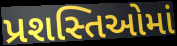
પ્રશસ્તિઓમાં